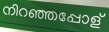
നിറഞ്ഞപ്പോള്